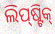
ଲିପ୍‍ଷ୍ଟିକ୍